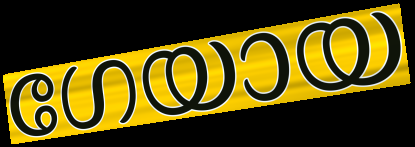
ഗേയായ